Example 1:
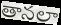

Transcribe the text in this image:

తానలా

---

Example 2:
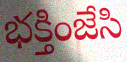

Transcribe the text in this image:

భక్తింజేసి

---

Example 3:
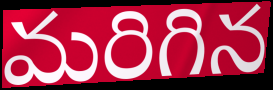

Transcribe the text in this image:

మరిగిన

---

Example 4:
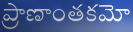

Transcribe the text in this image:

ప్రాణాంతకమో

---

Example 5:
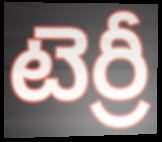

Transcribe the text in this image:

టెర్రీ